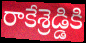
రాకేశ్రెడ్డికి